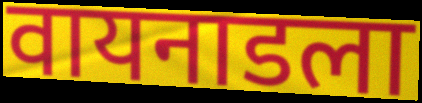
वायनाडला